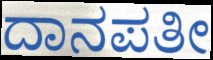
ದಾನಪತೀ